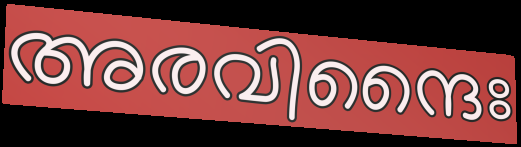
അരവിന്ദൈഃ